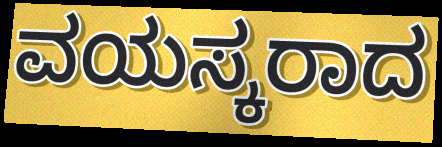
ವಯಸ್ಕರಾದ